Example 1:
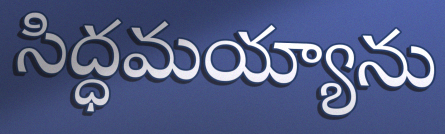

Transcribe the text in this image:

సిద్ధమయ్యాను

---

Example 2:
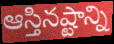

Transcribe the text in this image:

ఆస్తినష్టాన్ని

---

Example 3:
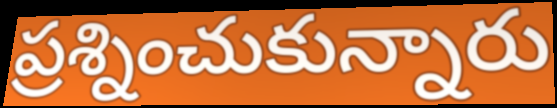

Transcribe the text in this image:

ప్రశ్నించుకున్నారు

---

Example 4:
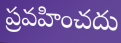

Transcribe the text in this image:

ప్రవహించదు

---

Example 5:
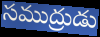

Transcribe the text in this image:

సముద్రుడు